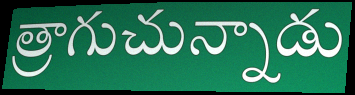
త్రాగుచున్నాడు